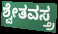
ಶ್ವೇತವಸ್ತ್ರ